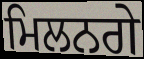
ਮਿਲਨਗੇ